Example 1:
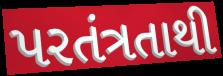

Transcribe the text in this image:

પરતંત્રતાથી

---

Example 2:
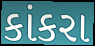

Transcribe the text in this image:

કાંકરા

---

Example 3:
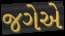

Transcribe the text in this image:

જગેએ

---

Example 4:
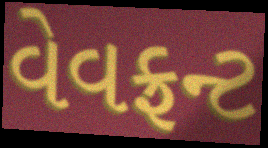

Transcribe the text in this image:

વેવફ્રન્ટ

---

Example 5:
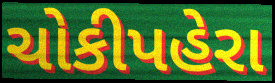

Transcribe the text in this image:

ચોકીપહેરા